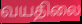
வயதிலை